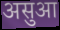
असुआ